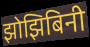
झोझिबिनी